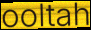
ooltah